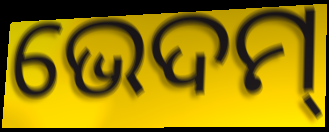
ଭେଦମ୍